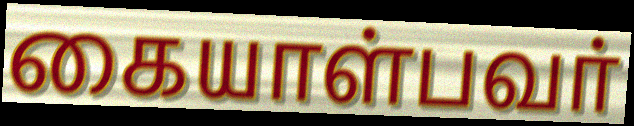
கையாள்பவர்